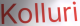
Kolluri